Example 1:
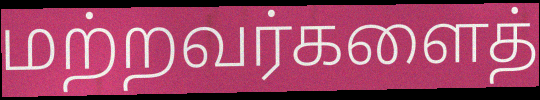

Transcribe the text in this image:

மற்றவர்களைத்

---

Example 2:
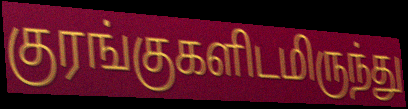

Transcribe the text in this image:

குரங்குகளிடமிருந்து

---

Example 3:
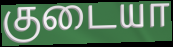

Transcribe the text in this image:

குடையா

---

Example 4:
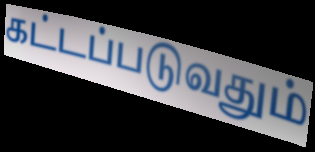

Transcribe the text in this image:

கட்டப்படுவதும்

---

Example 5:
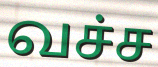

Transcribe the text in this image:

வச்ச